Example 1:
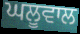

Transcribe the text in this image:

ਘਲੂਵਾਲ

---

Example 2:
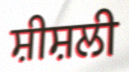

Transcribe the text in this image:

ਸ਼ੀਸ਼ਲੀ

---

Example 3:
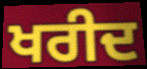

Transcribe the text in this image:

ਖਰੀਦ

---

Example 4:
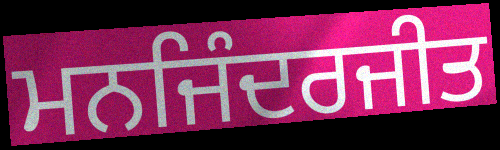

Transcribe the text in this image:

ਮਨਜਿੰਦਰਜੀਤ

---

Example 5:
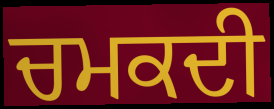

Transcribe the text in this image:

ਚਮਕਦੀ